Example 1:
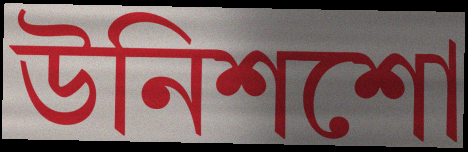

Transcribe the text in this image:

উনিশশো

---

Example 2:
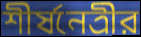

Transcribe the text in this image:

শীর্ষনেত্রীর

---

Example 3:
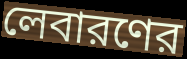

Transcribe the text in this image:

লেবারণের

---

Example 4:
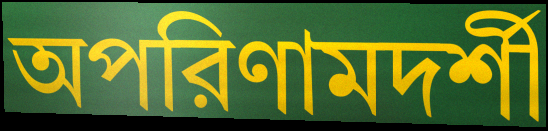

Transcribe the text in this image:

অপরিণামদর্শী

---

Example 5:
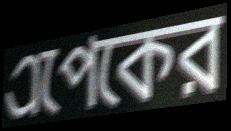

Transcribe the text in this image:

এপেকের